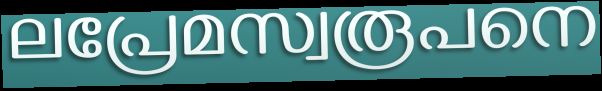
ലപ്രേമസ്വരൂപനെ